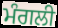
ਮੰਗਲੀ